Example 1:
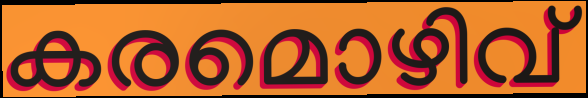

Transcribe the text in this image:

കരമൊഴിവ്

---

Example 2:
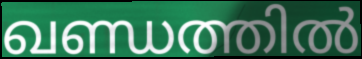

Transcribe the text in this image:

ഖണ്ഡത്തിൽ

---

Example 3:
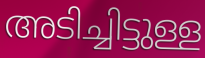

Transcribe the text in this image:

അടിച്ചിട്ടുള്ള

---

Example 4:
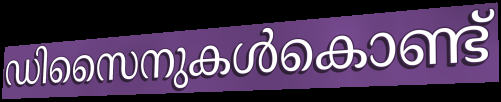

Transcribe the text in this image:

ഡിസൈനുകൾകൊണ്ട്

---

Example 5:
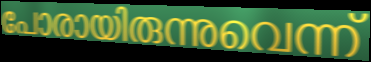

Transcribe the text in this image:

പോരായിരുന്നുവെന്ന്